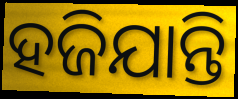
ହଜିଯାନ୍ତି